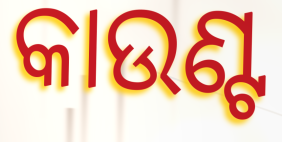
କାଉଣ୍ଟ